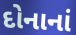
દોનાનાં